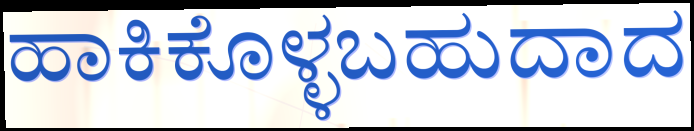
ಹಾಕಿಕೊಳ್ಳಬಹುದಾದ